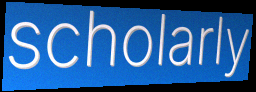
scholarly